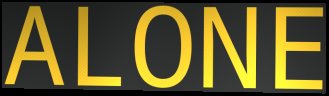
ALONE